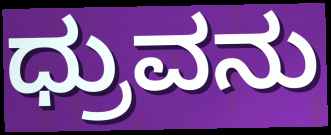
ಧ್ರುವನು